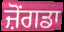
ਜ਼ੋਂਗਡਾ